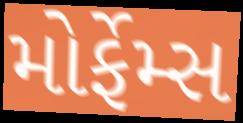
મોર્ફેમ્સ